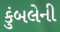
કુંબલેની